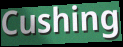
Cushing